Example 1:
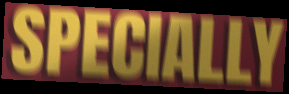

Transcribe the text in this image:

SPECIALLY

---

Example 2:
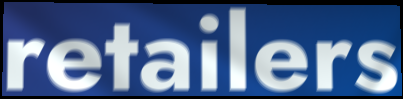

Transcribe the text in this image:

retailers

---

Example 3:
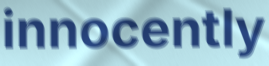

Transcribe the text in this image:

innocently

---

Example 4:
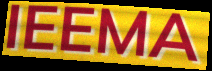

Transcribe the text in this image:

IEEMA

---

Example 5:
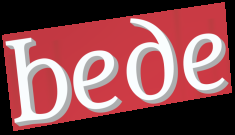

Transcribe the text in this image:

bede